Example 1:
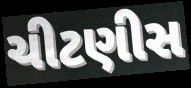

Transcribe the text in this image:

ચીટણીસ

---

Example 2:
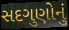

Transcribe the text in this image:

સદગુણોનું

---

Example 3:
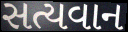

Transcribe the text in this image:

સત્યવાન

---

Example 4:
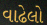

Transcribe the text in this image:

વાઢેલો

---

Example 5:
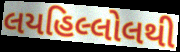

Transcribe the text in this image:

લયહિલ્લોલથી